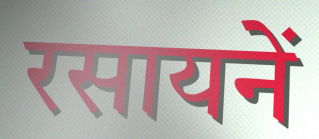
रसायनें